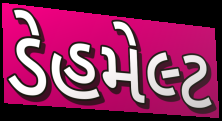
ડેહમેલ્ટ